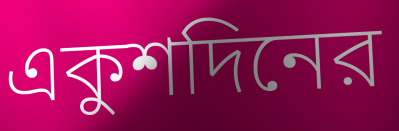
একুশদিনের